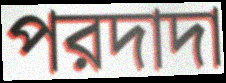
পরদাদা